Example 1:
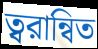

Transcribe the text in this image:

ত্বরান্বিত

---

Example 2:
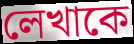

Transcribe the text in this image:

লেখাকে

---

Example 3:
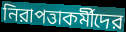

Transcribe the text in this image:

নিরাপত্তাকর্মীদের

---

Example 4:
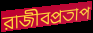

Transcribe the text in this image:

রাজীবপ্রতাপ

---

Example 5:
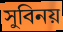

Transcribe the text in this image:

সুবিনয়